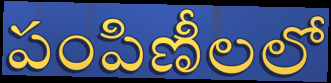
పంపిణీలలో